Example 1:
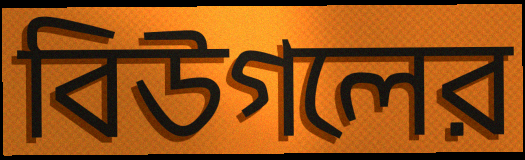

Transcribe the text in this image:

বিউগলের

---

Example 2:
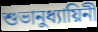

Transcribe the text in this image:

শুভানুধ্যায়িনী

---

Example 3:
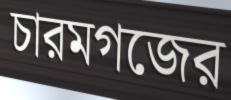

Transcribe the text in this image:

চারমগজের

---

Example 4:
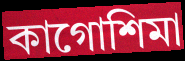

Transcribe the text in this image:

কাগোশিমা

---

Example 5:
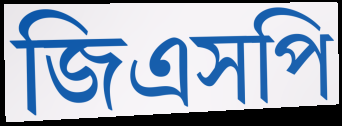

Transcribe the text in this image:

জিএসপি